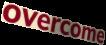
overcome